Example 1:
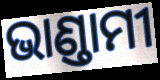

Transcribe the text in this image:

ଭାଣ୍ଡାମୀ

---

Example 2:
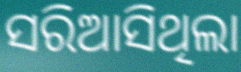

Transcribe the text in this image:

ସରିଆସିଥିଲା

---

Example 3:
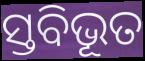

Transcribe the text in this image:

ସ୍ତବିଭୂତ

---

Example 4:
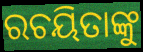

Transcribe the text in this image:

ରଚୟିତାଙ୍କୁ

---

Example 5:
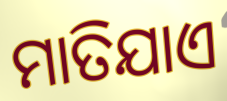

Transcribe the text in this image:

ମାତିଯାଏ